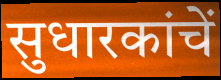
सुधारकांचें